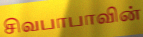
சிவபாபாவின்